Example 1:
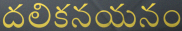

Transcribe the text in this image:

దలికనయనం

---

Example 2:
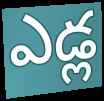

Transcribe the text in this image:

ఎడ్ల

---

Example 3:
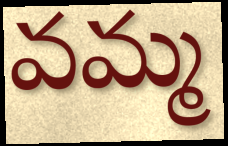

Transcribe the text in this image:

వమ్మ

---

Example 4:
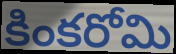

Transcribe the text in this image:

కింకరోమి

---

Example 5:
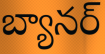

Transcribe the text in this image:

బ్యానర్